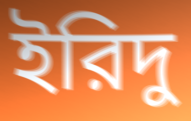
ইরিদু